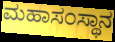
ಮಹಾಸಂಸ್ಥಾನ